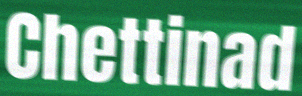
Chettinad